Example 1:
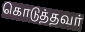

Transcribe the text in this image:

கொடுத்தவர்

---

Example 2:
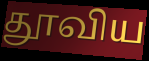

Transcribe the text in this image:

தூவிய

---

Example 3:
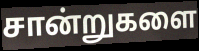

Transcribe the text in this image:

சான்றுகளை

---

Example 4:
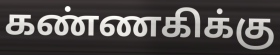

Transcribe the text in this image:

கண்ணகிக்கு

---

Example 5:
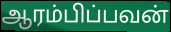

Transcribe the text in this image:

ஆரம்பிப்பவன்